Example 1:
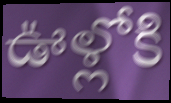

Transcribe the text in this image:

ఊళ్లోకి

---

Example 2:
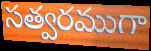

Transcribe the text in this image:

సత్వరముగా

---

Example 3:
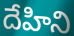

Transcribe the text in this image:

దేహిని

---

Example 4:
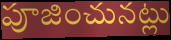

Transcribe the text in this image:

పూజించునట్లు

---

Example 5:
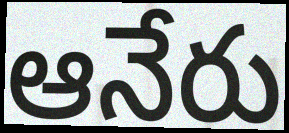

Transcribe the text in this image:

ఆనేరు